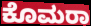
ಕೊಮರಾ